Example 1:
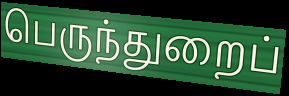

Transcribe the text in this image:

பெருந்துறைப்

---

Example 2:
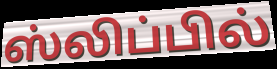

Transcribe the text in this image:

ஸ்லிப்பில்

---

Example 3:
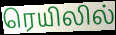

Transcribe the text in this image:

ரெயிலில்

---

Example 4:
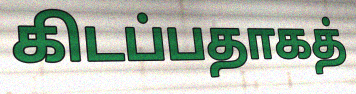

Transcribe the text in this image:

கிடப்பதாகத்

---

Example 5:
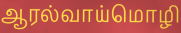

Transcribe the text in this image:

ஆரல்வாய்மொழி